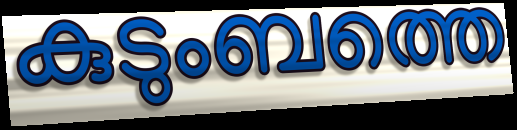
കുടുംബത്തെ